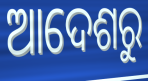
ଆଦେଶରୁ